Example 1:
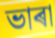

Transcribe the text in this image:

ভাৰা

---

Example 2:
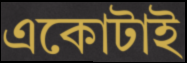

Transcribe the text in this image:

একোটাই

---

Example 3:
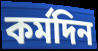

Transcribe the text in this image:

কৰ্মদিন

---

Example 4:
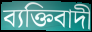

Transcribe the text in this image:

ব্যক্তিবাদী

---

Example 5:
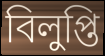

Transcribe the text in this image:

বিলুপ্তি